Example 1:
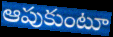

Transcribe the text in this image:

ఆపుకుంటూ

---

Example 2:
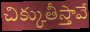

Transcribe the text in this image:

చిక్కుతీస్తావే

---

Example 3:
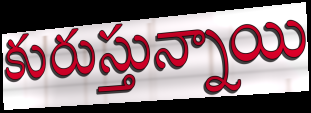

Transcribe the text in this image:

కురుస్తున్నాయి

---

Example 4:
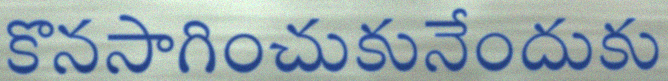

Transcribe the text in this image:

కొనసాగించుకునేందుకు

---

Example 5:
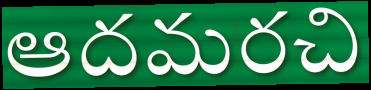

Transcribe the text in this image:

ఆదమరచి